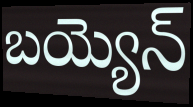
బయ్యెన్